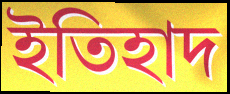
ইতিহাদ